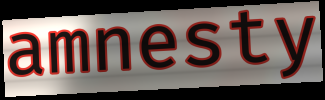
amnesty